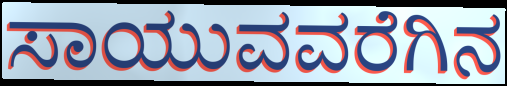
ಸಾಯುವವರೆಗಿನ